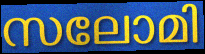
സലോമി